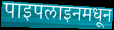
पाइपलाइनमधून